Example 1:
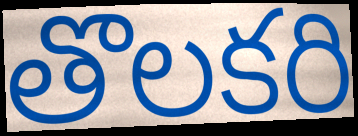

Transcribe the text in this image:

తొలకరి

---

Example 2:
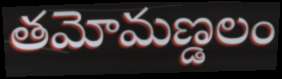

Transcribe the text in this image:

తమోమణ్డలం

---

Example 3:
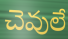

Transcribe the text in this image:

చెవులే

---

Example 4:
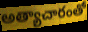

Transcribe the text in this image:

అత్యాచారంతో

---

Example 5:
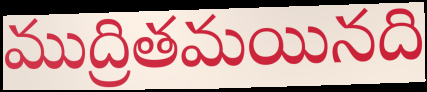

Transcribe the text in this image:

ముద్రితమయినది